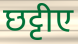
छट्टीए